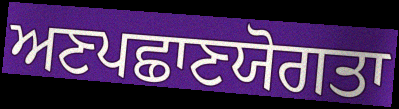
ਅਣਪਛਾਣਯੋਗਤਾ